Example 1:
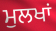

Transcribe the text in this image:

ਮੁਲਖਾਂ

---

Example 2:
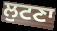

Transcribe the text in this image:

ਲੁਟਣਾ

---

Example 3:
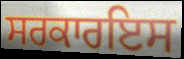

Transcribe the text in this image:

ਸਰਕਾਰਇਸ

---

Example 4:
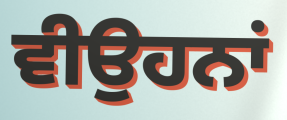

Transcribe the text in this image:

ਵੀਉਹਨਾਂ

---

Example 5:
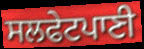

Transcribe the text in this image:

ਸਲਫੇਟਪਾਣੀ